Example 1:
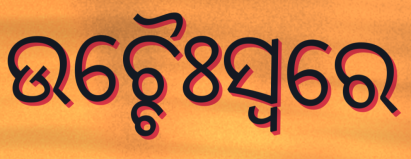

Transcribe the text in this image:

ଉଚ୍ଚୈଃସ୍ୱରେ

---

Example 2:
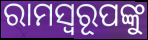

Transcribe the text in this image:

ରାମସ୍ୱରୂପଙ୍କୁ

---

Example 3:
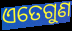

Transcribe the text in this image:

ଏତେଗୁଣ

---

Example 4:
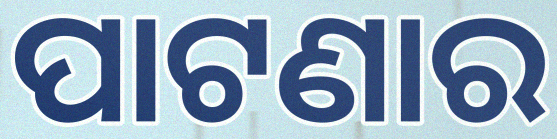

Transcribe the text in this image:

ପାଟଣାର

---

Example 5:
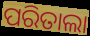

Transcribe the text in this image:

ପରିତାଲା